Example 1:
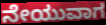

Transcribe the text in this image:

ನೇಯುವಾಗ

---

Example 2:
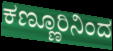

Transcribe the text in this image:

ಕಣ್ಣೂರಿನಿಂದ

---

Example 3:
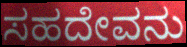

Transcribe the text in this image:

ಸಹದೇವನು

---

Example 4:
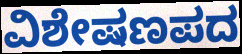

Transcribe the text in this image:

ವಿಶೇಷಣಪದ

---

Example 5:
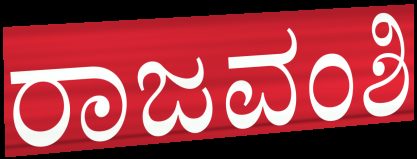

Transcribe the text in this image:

ರಾಜವಂಶಿ